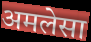
अमलेसा